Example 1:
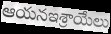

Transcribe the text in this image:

ఆయనఇశ్రాయేలు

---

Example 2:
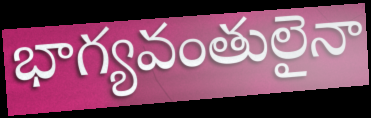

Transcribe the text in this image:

భాగ్యవంతులైనా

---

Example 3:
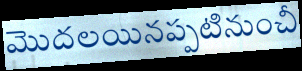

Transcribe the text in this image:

మొదలయినప్పటినుంచీ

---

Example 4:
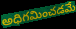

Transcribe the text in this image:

అధిగమించడమే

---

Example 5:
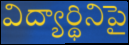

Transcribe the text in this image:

విద్యార్థినిపై